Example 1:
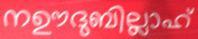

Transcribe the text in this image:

നഊദുബില്ലാഹ്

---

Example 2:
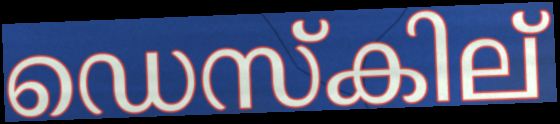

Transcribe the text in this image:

ഡെസ്കില്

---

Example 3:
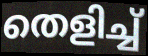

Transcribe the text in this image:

തെളിച്ച്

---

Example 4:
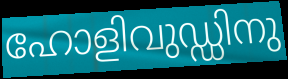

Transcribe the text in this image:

ഹോളിവുഡ്ഡിനു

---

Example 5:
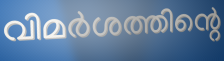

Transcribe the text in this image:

വിമർശത്തിന്റെ